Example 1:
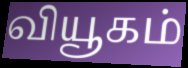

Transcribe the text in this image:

வியூகம்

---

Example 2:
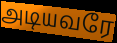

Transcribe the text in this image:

அடியவரே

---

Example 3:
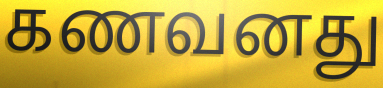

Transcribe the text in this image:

கணவனது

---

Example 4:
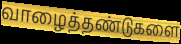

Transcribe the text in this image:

வாழைத்தண்டுகளை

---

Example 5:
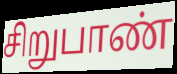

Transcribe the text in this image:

சிறுபாண்